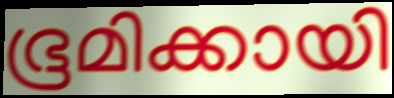
ഭൂമിക്കായി